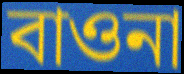
বাওনা